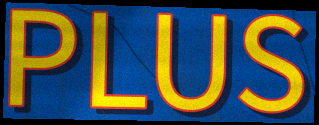
PLUS